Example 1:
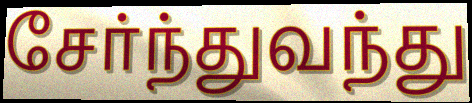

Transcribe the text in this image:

சேர்ந்துவந்து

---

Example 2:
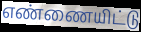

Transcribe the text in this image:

எண்ணையிட்டு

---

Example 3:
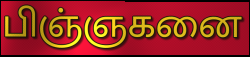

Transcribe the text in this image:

பிஞ்ஞகனை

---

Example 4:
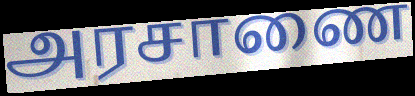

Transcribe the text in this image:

அரசாணை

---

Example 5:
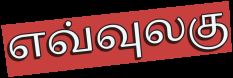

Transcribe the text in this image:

எவ்வுலகு